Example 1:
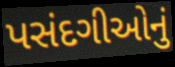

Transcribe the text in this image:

પસંદગીઓનું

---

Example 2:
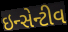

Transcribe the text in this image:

ઇન્સેન્ટીવ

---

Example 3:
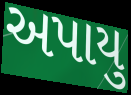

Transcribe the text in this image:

અપાયુ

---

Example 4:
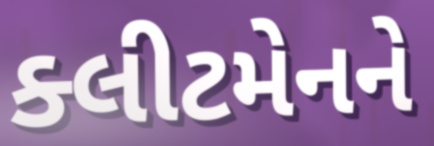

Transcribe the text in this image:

ક્લીટમેનને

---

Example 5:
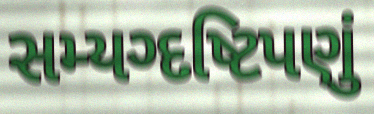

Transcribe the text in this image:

સમ્યગ્દષ્ટિપણું